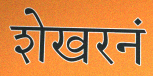
शेखरनं